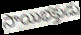
సాయిభక్తుడు